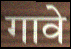
गावे